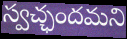
స్వచ్ఛందమని